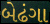
બેઢંગા